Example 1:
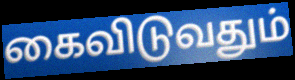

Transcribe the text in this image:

கைவிடுவதும்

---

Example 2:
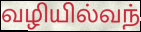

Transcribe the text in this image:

வழியில்வந்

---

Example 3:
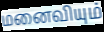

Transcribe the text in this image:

மனைவியும்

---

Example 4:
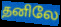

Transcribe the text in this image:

தனிலே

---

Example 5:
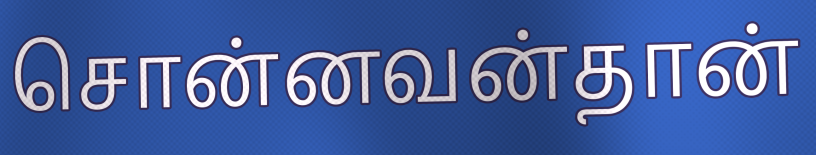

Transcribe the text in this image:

சொன்னவன்தான்